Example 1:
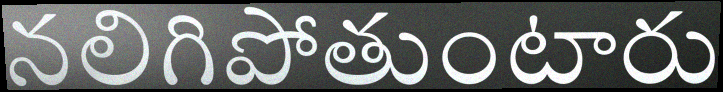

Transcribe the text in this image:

నలిగిపోతుంటారు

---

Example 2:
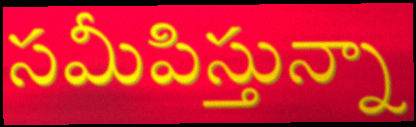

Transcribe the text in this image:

సమీపిస్తున్నా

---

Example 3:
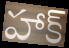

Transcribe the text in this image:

హాక్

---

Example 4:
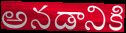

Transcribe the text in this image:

అనడానికి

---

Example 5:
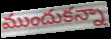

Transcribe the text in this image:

ముందుకన్నా